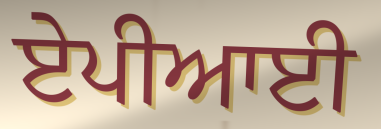
ਏਪੀਆਈ